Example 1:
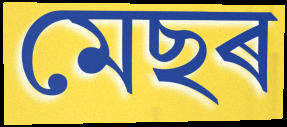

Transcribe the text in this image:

মেছৰ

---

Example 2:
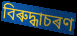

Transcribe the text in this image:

বিৰুদ্ধাচৰণ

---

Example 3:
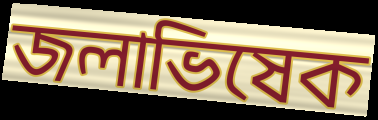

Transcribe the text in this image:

জলাভিষেক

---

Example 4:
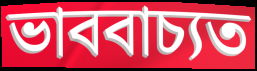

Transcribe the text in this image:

ভাববাচ্যত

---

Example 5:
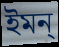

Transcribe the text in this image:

ইমন্